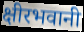
क्षीरभवानी